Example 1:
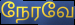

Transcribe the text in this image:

நேரவே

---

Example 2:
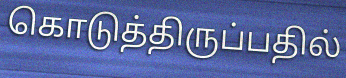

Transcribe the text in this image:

கொடுத்திருப்பதில்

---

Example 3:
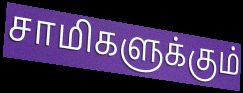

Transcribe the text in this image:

சாமிகளுக்கும்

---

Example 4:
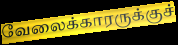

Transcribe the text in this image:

வேலைக்காரருக்குச்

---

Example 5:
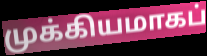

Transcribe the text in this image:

முக்கியமாகப்